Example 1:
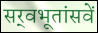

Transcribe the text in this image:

सर्वभूतांसवें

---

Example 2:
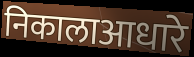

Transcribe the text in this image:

निकालाआधारे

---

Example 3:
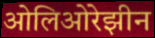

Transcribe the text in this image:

ओलिओरेझीन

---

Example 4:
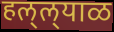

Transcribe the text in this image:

हल्ल्याळ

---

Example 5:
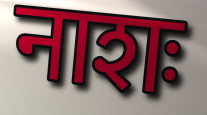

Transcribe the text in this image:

नाशः